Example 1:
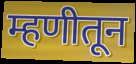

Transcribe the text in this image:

म्हणीतून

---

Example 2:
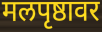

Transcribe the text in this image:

मलपृष्ठावर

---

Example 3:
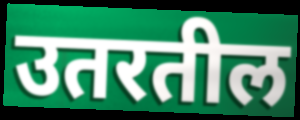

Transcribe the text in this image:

उतरतील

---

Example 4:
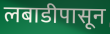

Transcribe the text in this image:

लबाडीपासून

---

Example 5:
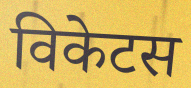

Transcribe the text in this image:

विकेटस